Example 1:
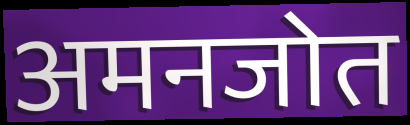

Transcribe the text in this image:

अमनजोत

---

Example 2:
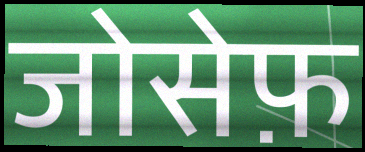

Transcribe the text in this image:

जोसेफ़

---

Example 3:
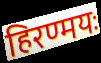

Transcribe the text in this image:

हिरण्मयः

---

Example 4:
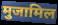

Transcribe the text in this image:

मुजामिल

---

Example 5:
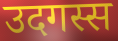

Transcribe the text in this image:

उदगस्स